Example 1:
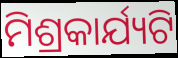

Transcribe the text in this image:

ମିଶ୍ରକାର୍ଯ୍ୟଟି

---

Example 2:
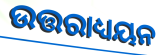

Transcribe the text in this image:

ଉତ୍ତରାଧ୍ୟୟନ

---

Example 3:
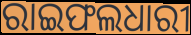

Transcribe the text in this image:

ରାଇଫଲଧାରୀ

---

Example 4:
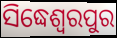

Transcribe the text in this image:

ସିଦ୍ଧେଶ୍ଵରପୁର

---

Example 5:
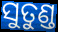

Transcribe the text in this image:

ସୁତୁଣ୍ଡ